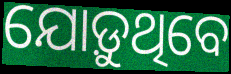
ଯୋଡ଼ୁଥିବେ